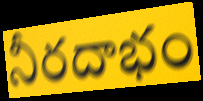
నీరదాభం